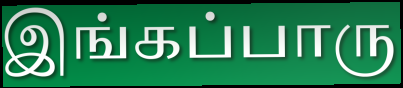
இங்கப்பாரு